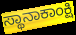
ಸ್ಥಾನಾಕಾಂಕ್ಷಿ